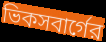
ভিকসবার্গের